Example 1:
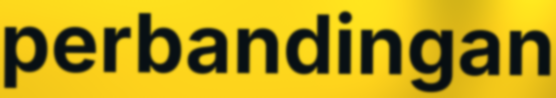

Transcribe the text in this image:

perbandingan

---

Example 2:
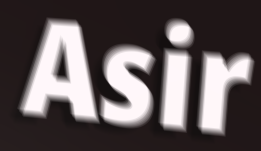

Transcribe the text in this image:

Asir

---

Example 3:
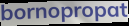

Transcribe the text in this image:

bornopropat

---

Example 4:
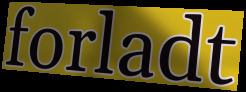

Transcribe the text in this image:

forladt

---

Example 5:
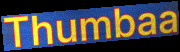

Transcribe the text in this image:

Thumbaa